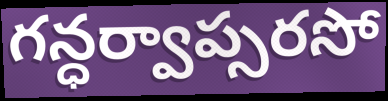
గన్ధర్వాప్సరసో